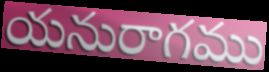
యనురాగము